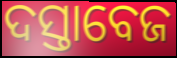
ଦସ୍ତାବେଜ